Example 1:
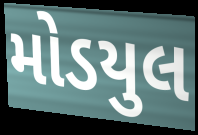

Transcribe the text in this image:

મોડયુલ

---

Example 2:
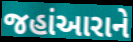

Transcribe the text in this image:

જહાંઆરાને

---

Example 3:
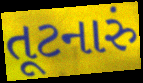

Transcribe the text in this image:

તૂટનારું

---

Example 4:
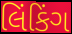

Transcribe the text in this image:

લિંકિંગ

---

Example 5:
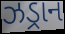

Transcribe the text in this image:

ઝડ્રાન